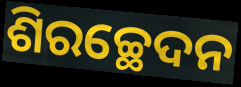
ଶିରଚ୍ଛେଦନ